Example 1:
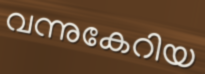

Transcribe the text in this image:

വന്നുകേറിയ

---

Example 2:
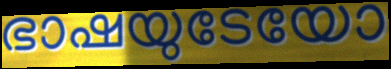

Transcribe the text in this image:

ഭാഷയുടേയോ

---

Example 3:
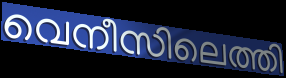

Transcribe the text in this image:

വെനീസിലെത്തി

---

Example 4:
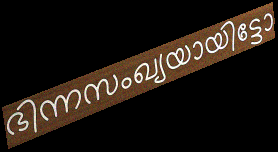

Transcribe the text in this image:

ഭിന്നസംഖ്യയായിട്ടോ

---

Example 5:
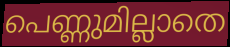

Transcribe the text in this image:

പെണ്ണുമില്ലാതെ